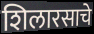
शिलारसाचे